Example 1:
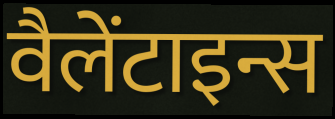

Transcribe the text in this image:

वैलेंटाइन्स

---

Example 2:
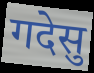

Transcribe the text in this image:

गदेसु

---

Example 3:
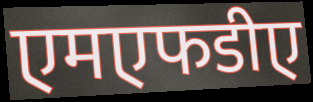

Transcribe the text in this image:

एमएफडीए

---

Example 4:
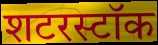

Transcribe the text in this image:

शटरस्‍टॉक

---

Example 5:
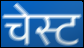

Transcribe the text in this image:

चेस्‍ट